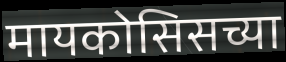
मायकोसिसच्या